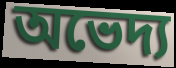
অভেদ্য